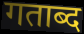
गताब्द